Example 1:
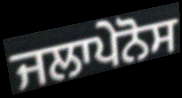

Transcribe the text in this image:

ਜਲਾਪੇਨੋਸ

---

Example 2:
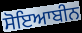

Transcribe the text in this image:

ਸੋਇਆਬੀਨ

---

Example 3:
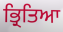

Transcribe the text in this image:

ਭ੍ਰਿਤਿਆ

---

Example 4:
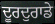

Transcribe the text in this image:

ਦੂਰਦੁਰਾਡੇ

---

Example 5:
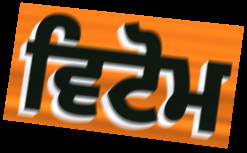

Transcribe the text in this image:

ਵਿਟੋਮ